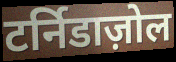
टर्निडाज़ोल